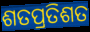
ଶତପ୍ରତିଶତ